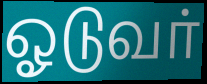
ஓடுவர்